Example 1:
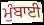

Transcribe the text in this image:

ਮੁੰਬਾਈ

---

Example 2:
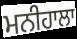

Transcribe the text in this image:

ਮਨੀਹਾਲਾ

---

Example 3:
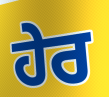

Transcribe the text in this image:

ਹੇਰ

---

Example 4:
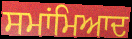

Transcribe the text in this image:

ਸਮਾਂਮਿਆਦ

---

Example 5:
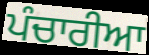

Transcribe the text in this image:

ਪੰਚਾਰੀਆ